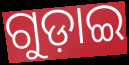
ଗୁଡ଼ାଇ